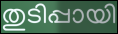
തുടിപ്പായി